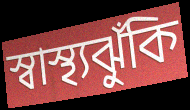
স্বাস্থ্যঝুঁকি